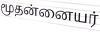
மூதன்னையர்